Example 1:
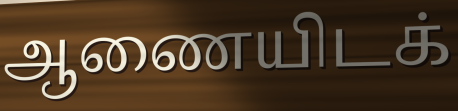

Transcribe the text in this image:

ஆணையிடக்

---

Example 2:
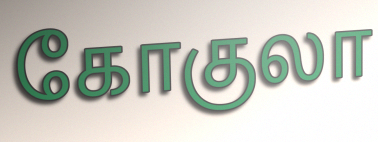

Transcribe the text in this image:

கோகுலா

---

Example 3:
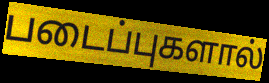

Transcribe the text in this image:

படைப்புகளால்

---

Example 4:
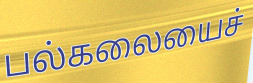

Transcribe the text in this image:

பல்கலையைச்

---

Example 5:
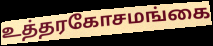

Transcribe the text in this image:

உத்தரகோசமங்கை